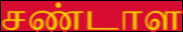
சண்டாள